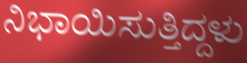
ನಿಭಾಯಿಸುತ್ತಿದ್ದಳು